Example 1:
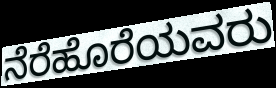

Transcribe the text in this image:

ನೆರೆಹೊರೆಯವರು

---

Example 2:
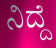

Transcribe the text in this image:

ನಿದ್ದೆ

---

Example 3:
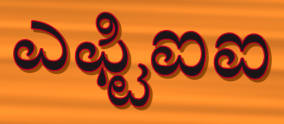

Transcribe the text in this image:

ಎಫ್ಟಿಐಐ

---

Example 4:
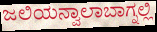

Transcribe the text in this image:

ಜಲಿಯನ್ವಾಲಾಬಾಗ್ನಲ್ಲಿ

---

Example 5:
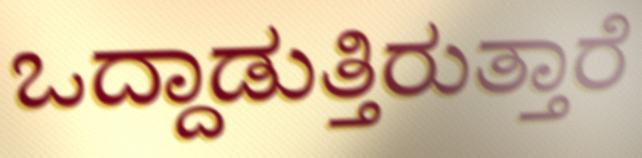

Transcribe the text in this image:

ಒದ್ದಾಡುತ್ತಿರುತ್ತಾರೆ